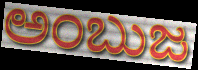
ಅಂಬುಜ